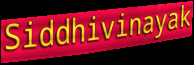
Siddhivinayak